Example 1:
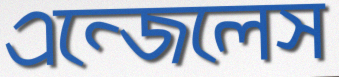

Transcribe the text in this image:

এন্জেলেস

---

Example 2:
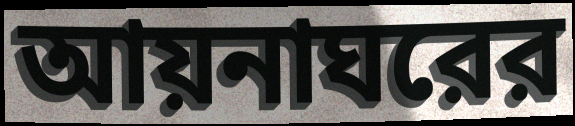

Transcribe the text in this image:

আয়নাঘরের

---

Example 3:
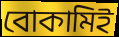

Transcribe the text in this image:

বোকামিই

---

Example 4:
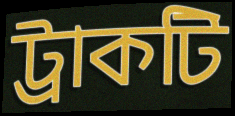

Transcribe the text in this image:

ট্রাকটি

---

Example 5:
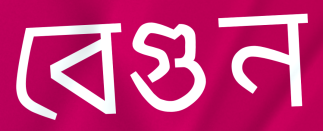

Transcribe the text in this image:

বেগুন